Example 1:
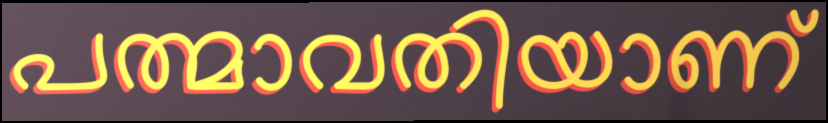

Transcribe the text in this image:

പത്മാവതിയാണ്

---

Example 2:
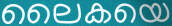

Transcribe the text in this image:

ലൈകയെ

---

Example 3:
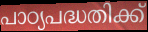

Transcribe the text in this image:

പാഠ്യപദ്ധതിക്ക്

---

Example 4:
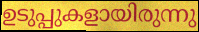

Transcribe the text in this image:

ഉടുപ്പുകളായിരുന്നു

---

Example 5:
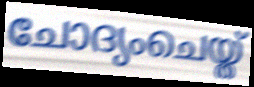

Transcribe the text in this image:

ചോദ്യംചെയ്ത്